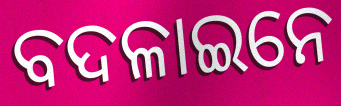
ବଦଳାଇନେ